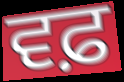
ਵਫ਼